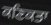
ਕਣਿਕਤਾ